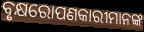
ବୃକ୍ଷରୋପଣକାରୀମାନଙ୍କ